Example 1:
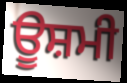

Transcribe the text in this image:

ਊਸ਼ਮੀ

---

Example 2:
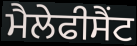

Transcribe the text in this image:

ਮੈਲੇਫੀਸੈਂਟ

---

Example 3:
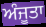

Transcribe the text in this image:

ਅੰਜੂਤਾ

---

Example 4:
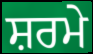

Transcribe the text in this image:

ਸ਼ਰਮੇ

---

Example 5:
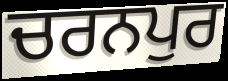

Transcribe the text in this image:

ਚਰਨਪੁਰ